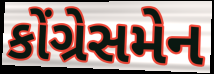
કોંગ્રેસમેન